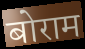
बोराम